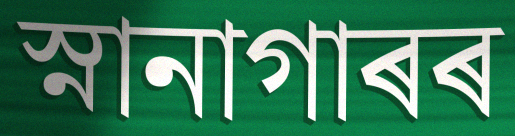
স্নানাগাৰৰ